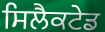
ਸਿਲੈਕਟੇਡ